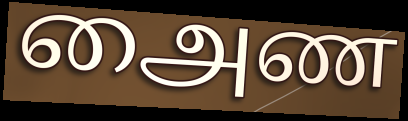
அைண